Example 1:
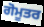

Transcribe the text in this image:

ਗੋਮੂਤਰ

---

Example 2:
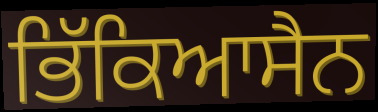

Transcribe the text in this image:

ਭਿੱਕਿਆਸੈਨ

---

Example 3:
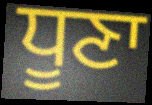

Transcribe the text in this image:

ਧੂਣਾ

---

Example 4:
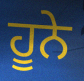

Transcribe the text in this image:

ਹੂਨੇ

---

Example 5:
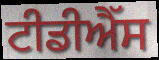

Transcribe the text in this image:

ਟੀਡੀਐੱਸ